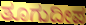
ತೂಗುದೀಪ